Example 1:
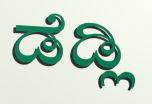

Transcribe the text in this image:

ಡೆಡ್ಲಿ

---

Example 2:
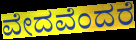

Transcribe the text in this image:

ವೇದವೆಂದರೆ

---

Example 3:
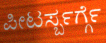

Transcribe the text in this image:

ಪೀಟರ್ಸ್ಬರ್ಗ್ಗೆ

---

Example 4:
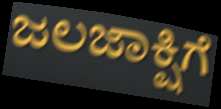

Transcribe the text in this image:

ಜಲಜಾಕ್ಷಿಗೆ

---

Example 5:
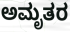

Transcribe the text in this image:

ಅಮೃತರ